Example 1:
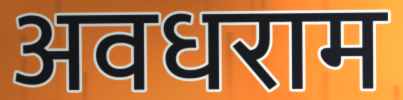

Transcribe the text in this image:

अवधराम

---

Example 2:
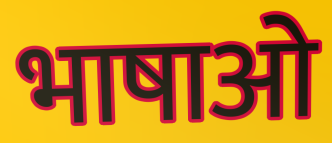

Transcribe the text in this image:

भाषाओ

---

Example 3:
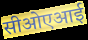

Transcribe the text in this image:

सीओएआई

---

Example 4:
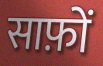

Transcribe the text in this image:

साफ़ों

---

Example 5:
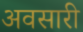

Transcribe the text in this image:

अवसारी